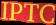
IPTC